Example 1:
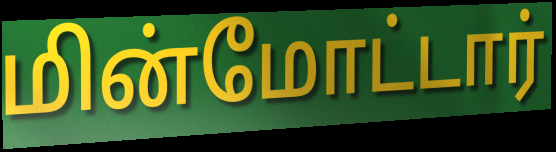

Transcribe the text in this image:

மின்மோட்டார்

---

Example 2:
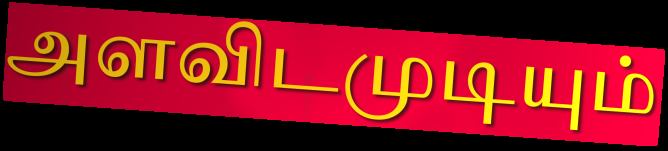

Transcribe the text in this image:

அளவிடமுடியும்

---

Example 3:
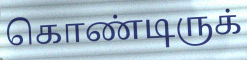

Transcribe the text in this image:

கொண்டிருக்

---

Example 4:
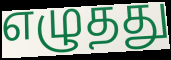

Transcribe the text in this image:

எழுதது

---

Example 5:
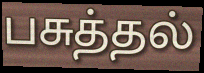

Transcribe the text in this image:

பசுத்தல்